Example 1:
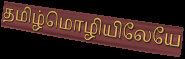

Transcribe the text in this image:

தமிழ்மொழியிலேயே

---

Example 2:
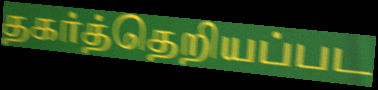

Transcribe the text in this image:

தகர்த்தெறியப்பட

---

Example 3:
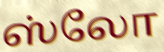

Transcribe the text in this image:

ஸ்லோ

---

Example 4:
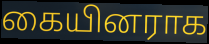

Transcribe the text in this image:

கையினராக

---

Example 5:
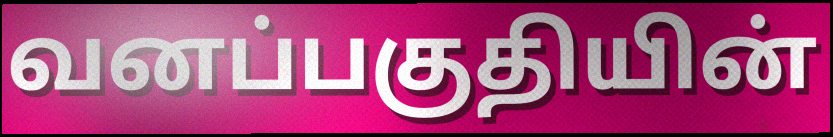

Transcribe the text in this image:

வனப்பகுதியின்